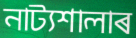
নাট্যশালাৰ